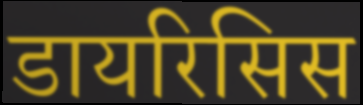
डायरिसिस